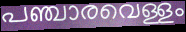
പഞ്ചാരവെള്ളം